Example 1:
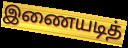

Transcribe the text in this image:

இணையடித்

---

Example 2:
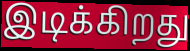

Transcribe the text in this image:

இடிக்கிறது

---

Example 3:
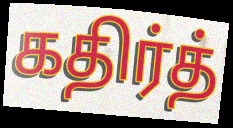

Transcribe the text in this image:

கதிர்த்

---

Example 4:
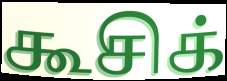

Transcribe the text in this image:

கூசிக்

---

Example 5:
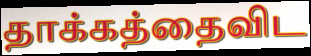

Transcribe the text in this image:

தாக்கத்தைவிட